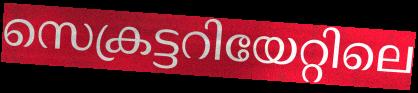
സെക്രട്ടറിയേറ്റിലെ